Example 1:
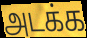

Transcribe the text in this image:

அடக்க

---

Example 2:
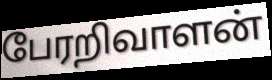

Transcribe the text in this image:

பேரறிவாளன்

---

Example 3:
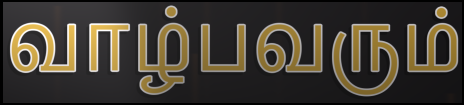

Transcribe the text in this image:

வாழ்பவரும்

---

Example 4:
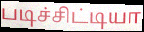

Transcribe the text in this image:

படிச்சிட்டியா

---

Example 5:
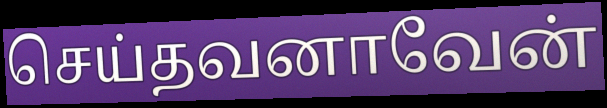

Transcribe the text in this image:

செய்தவனாவேன்